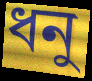
ধনু